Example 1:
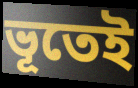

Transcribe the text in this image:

ভূতেই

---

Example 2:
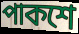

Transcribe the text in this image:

পাকশে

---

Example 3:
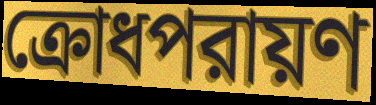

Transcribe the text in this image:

ক্রোধপরায়ণ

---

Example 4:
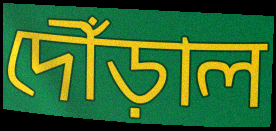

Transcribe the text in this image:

দৌঁড়াল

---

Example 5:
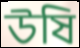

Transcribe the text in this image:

উষি